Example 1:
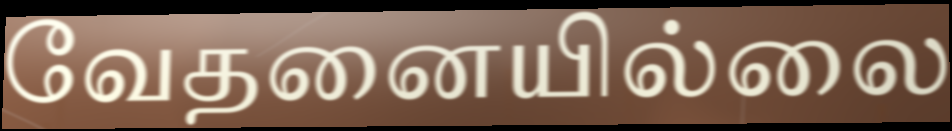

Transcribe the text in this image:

வேதனையில்லை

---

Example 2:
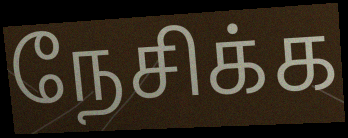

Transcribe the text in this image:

நேசிக்க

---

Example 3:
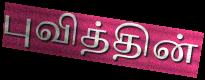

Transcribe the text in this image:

புவித்தின்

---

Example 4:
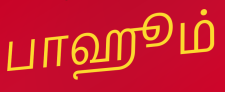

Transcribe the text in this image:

பாஹூம்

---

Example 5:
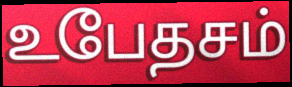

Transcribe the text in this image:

உபேதசம்